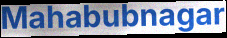
Mahabubnagar